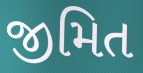
જીમિત